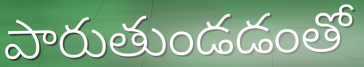
పారుతుండడంతో